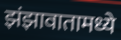
झंझावातामध्ये